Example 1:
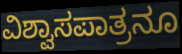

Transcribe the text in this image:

ವಿಶ್ವಾಸಪಾತ್ರನೂ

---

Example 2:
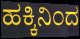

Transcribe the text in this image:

ಹಕ್ಕಿನಿಂದ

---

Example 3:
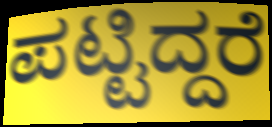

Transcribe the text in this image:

ಪಟ್ಟಿದ್ದರೆ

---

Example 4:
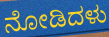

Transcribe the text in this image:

ನೋಡಿದಳು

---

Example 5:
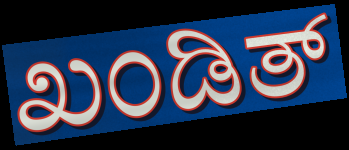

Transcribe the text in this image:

ಖಂಡಿತ್